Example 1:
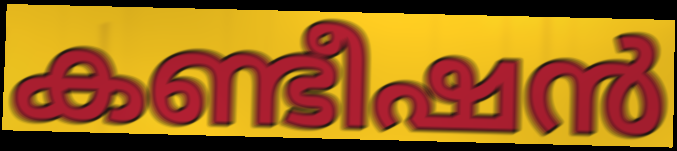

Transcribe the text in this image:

കണ്ടീഷൻ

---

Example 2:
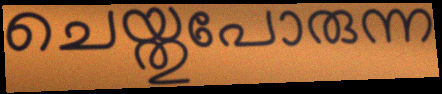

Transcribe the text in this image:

ചെയ്തുപോരുന്ന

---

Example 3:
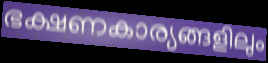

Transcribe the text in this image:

ഭക്ഷണകാര്യങ്ങളിലും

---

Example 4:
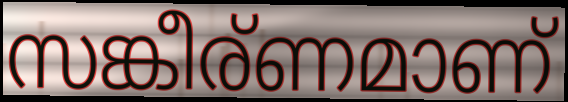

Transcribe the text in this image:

സങ്കീര്ണമാണ്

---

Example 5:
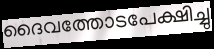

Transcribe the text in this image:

ദൈവത്തോടപേക്ഷിച്ചു